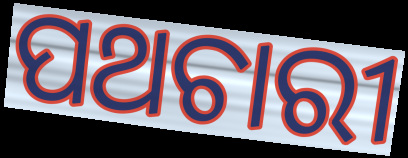
ପଥଚାରୀ